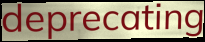
deprecating